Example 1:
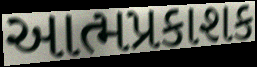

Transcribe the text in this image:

આત્મપ્રકાશક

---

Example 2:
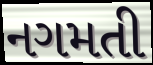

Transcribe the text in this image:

નગમતી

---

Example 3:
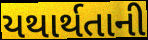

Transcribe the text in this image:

યથાર્થતાની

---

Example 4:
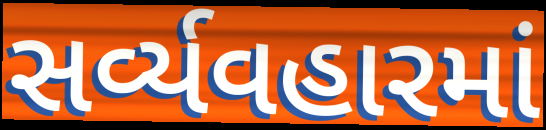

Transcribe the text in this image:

સર્વ્યવહારમાં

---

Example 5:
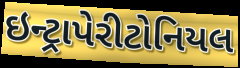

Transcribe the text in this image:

ઇન્ટ્રાપેરીટોનિયલ